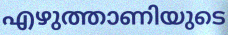
എഴുത്താണിയുടെ